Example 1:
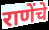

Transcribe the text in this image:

राणेंचे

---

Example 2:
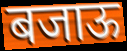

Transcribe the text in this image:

बजाऊ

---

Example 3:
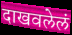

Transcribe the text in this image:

दाखवलेलं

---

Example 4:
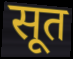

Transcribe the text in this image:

सूत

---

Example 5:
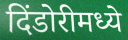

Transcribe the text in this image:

दिंडोरीमध्ये